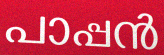
പാപ്പൻ